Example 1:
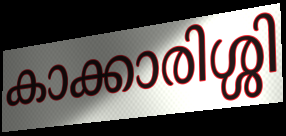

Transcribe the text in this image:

കാക്കാരിശ്ശി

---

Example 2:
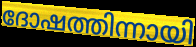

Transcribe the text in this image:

ദോഷത്തിന്നായി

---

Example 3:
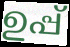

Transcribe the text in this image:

ഉപ്പ്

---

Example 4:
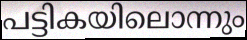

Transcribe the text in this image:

പട്ടികയിലൊന്നും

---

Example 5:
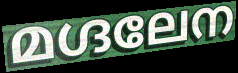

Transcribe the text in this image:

മഗ്ദലേന